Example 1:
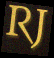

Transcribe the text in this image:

RJ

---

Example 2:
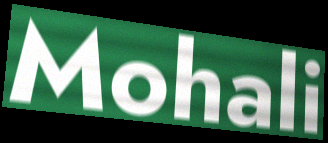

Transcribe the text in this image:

Mohali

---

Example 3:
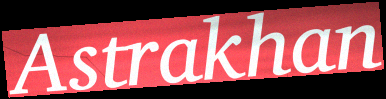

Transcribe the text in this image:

Astrakhan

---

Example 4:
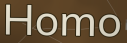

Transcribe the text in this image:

Homo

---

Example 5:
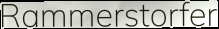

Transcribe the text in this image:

Rammerstorfer